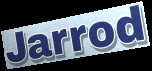
Jarrod